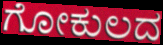
ಗೋಕುಲದ